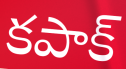
కపాక్